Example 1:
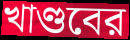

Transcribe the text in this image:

খাণ্ডবের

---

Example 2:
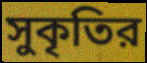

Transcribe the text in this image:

সুকৃতির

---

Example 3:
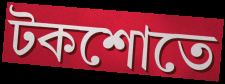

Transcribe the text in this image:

টকশোতে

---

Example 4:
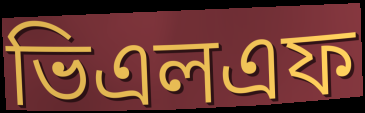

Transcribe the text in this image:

ভিএলএফ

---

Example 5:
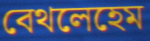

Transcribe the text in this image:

বেথলেহেম